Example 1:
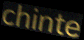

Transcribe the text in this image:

chinte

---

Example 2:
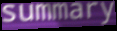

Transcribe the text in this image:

summary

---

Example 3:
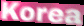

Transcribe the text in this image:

Korea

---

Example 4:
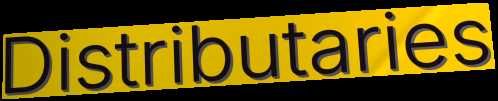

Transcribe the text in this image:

Distributaries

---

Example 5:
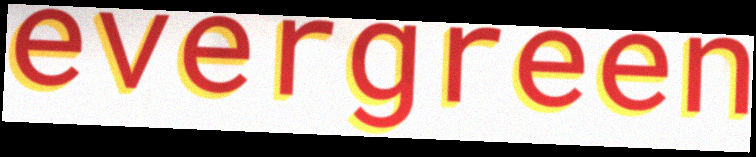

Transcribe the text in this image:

evergreen